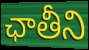
ఛాతీని